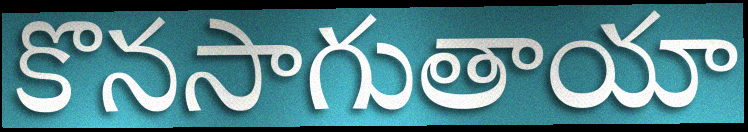
కొనసాగుతాయా